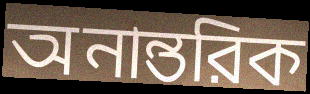
অনান্তরিক